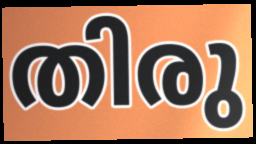
തിരു